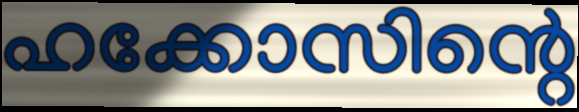
ഹക്കോസിന്റെ